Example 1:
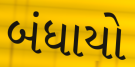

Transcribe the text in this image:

બંધાયો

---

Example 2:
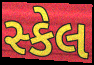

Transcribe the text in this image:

સ્કેલ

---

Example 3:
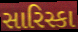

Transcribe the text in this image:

સારિસ્કા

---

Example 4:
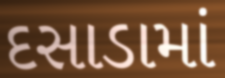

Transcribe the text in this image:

દસાડામાં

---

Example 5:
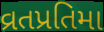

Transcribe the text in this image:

વ્રતપ્રતિમા